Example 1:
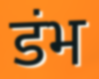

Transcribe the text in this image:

डंभ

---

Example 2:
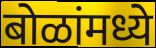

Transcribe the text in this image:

बोळांमध्ये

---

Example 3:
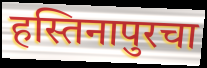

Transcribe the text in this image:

हस्तिनापुरचा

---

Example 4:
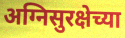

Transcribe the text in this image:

अग्निसुरक्षेच्या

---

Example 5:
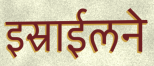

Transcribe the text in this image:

इस्राईलने